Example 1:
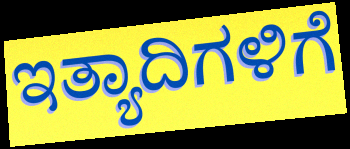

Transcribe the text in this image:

ಇತ್ಯಾದಿಗಳಿಗೆ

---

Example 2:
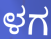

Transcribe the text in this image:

ಳಗ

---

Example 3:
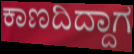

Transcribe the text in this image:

ಕಾಣದಿದ್ದಾಗ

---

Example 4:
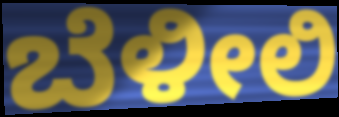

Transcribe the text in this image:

ಬೆಳೀಲಿ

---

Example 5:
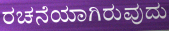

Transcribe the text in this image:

ರಚನೆಯಾಗಿರುವುದು